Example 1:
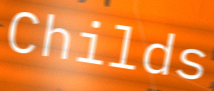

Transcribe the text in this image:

Childs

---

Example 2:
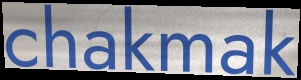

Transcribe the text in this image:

chakmak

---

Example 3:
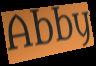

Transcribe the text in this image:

Abby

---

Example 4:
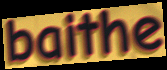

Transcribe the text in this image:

baithe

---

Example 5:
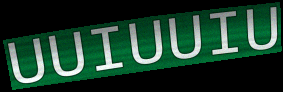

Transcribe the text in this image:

UUIUUIU